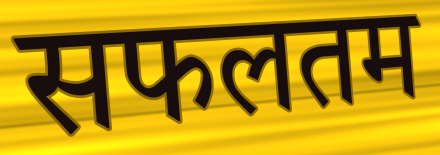
सफलतम